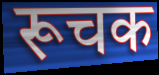
रूचक